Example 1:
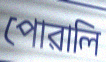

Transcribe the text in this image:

পোৱালি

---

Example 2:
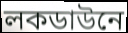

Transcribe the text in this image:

লকডাউনে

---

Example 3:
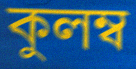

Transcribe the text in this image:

কুলম্ব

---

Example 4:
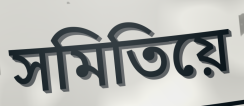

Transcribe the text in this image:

সমিতিয়ে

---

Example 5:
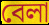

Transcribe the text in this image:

বেলা